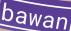
bawan